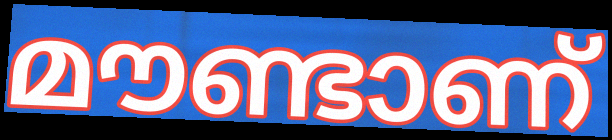
മൗണ്ടാണ്